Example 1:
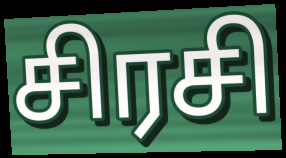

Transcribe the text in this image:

சிரசி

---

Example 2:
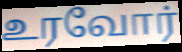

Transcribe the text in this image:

உரவோர்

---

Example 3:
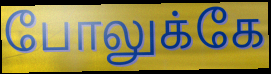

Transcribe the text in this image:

போலுக்கே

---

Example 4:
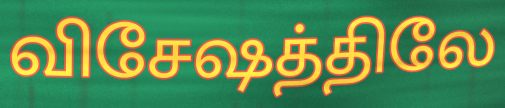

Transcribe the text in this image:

விசேஷத்திலே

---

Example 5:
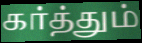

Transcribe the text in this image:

கர்த்தும்